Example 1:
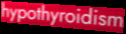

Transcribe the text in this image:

hypothyroidism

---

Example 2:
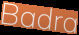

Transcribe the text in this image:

Badra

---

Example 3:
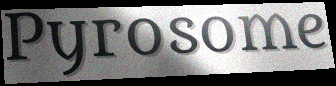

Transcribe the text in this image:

Pyrosome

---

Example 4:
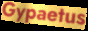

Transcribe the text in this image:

Gypaetus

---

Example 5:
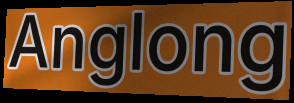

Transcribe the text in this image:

Anglong